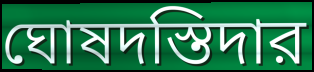
ঘোষদস্তিদার